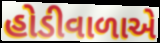
હોડીવાળાએ